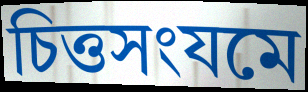
চিত্তসংযমে